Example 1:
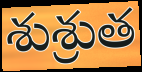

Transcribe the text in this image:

శుశ్రుత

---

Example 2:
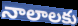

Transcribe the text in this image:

నాలాలకు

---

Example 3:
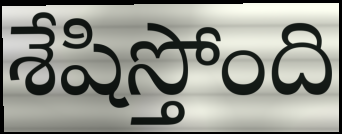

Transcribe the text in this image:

శేషిస్తోంది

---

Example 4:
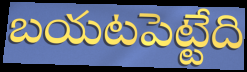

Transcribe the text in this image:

బయటపెట్టేది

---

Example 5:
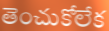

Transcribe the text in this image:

తెంచుకోలేక